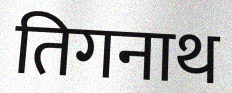
तिगनाथ